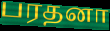
பரதனா